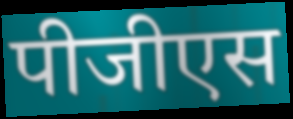
पीजीएस